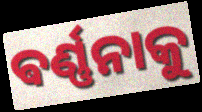
ଵର୍ଣ୍ଣନାକୁ